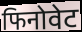
फिनोवेट